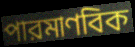
পারমাণবিক